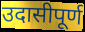
उदासीपूर्ण